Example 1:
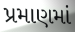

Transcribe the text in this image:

પ્રમાણમાં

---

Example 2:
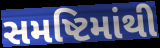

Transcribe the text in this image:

સમષ્ટિમાંથી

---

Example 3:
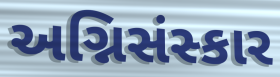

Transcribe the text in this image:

અગ્નિસંસ્કાર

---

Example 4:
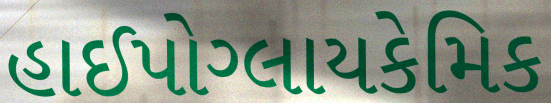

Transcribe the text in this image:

હાઈપોગ્લાયકેમિક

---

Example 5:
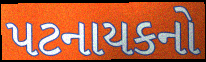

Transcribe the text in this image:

પટનાયકનો